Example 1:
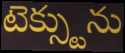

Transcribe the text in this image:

టెక్స్టును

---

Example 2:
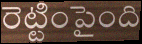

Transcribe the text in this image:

రెట్టింపైంది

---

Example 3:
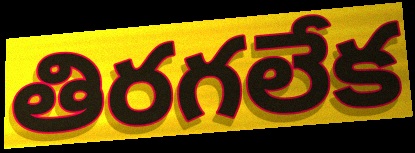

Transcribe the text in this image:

తిరగలేక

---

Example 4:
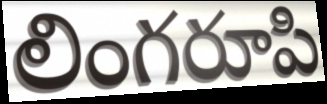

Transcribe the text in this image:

లింగరూపి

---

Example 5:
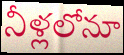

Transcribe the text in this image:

నీళ్లలోనూ